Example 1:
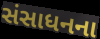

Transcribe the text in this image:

સંસાધનના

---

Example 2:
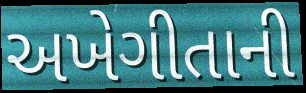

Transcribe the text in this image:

અખેગીતાની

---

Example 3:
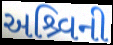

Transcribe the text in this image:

અશ્ર્વિની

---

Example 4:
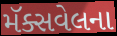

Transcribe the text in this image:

મૅક્સવેલના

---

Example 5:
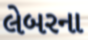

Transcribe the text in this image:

લેબરના